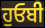
ਹੁਓਬੀ